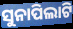
ସୁନାପିଲାଟି